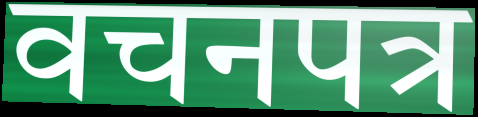
वचनपत्र